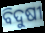
ବିଦୁଷୀ